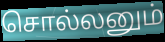
சொல்லனும்